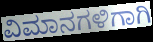
ವಿಮಾನಗಳಿಗಾಗಿ